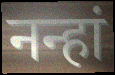
नन्हां